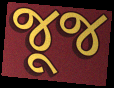
જૂજ